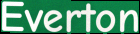
Everton